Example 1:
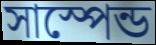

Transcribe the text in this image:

সাস্পেন্ড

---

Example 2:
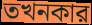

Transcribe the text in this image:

তখনকার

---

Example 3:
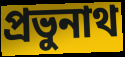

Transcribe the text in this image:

প্রভুনাথ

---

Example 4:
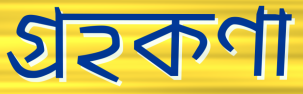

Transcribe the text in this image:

গ্রহকণা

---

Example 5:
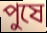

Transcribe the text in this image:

পুষে